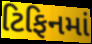
ટિફિનમાં